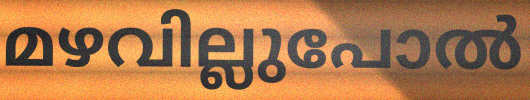
മഴവില്ലുപോൽ